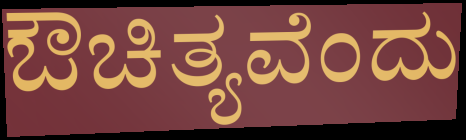
ಔಚಿತ್ಯವೆಂದು